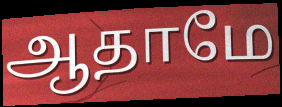
ஆதாமே